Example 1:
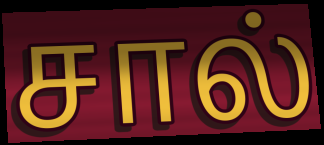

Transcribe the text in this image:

சால்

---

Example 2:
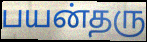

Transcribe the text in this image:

பயன்தரு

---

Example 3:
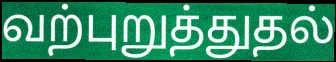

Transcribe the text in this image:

வற்புறுத்துதல்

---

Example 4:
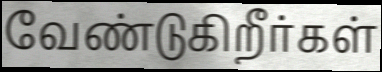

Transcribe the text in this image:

வேண்டுகிறீர்கள்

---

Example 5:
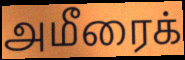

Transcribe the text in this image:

அமீரைக்